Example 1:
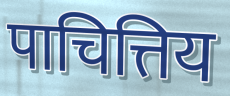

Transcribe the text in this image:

पाचित्तिय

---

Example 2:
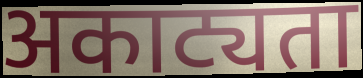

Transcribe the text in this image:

अकाट्यता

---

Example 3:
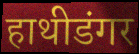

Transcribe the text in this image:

हाथीडंगर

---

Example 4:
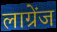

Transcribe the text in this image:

लाग्रेंज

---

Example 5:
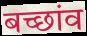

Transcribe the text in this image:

बच्छांव